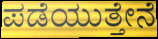
ಪಡೆಯುತ್ತೇನೆ